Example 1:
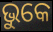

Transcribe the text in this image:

ଭୁକେ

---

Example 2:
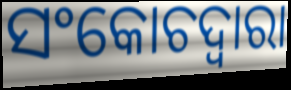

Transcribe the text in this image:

ସଂକୋଚଦ୍ୱାରା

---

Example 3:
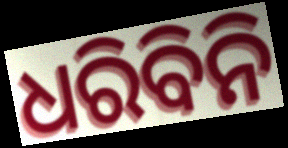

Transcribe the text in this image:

ଧରିବିନି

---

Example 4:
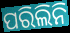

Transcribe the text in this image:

ପରିଲିନି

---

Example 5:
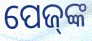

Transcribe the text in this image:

ପେଜ୍‌ଙ୍କ